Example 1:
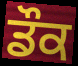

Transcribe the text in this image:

ਡੌਕ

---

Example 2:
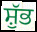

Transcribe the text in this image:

ਸ਼ੁੱਭ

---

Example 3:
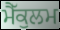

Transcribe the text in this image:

ਮੈੱਕੁਲਮ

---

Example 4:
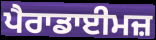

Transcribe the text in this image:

ਪੈਰਾਡਾਈਮਜ਼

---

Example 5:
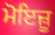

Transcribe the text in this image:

ਮੋਇਜ਼ੂ